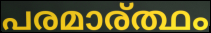
പരമാര്ത്ഥം